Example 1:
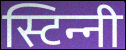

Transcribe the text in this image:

स्टिन्नी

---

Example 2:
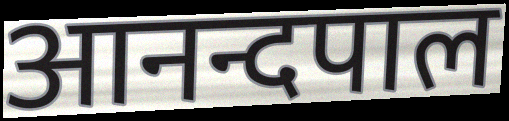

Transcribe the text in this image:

आनन्दपाल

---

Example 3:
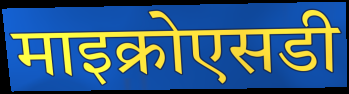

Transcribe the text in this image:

माइक्रोएसडी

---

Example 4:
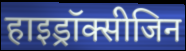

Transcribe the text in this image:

हाइड्रॉक्सीजिन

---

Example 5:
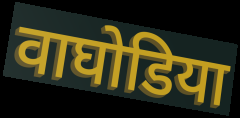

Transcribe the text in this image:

वाघोडिया